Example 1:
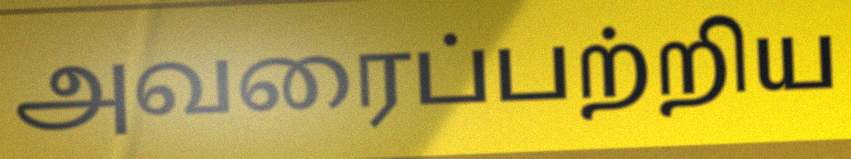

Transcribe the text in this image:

அவரைப்பற்றிய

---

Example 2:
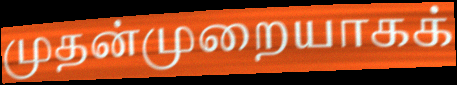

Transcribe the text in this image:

முதன்முறையாகக்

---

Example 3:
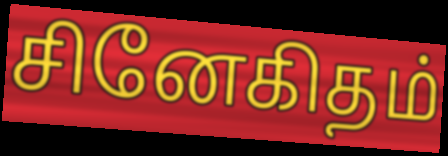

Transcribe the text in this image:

சினேகிதம்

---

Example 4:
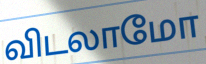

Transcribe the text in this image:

விடலாமோ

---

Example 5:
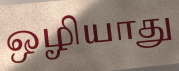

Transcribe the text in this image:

ஒழியாது